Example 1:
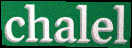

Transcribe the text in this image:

chalel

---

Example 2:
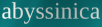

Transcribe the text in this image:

abyssinica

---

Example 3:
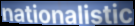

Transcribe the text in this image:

nationalistic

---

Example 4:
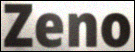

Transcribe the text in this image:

Zeno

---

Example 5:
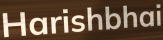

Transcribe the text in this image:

Harishbhai